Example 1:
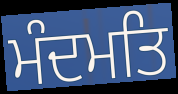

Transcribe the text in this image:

ਮੰਦਮਤਿ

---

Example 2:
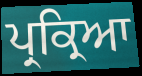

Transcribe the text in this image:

ਪ੍ਰਕ੍ਰਿਆ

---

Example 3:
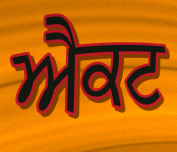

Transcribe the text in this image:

ਐਕਟ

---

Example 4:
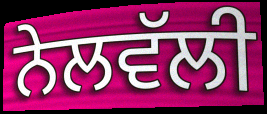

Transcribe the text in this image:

ਨੇਲਵੱਲੀ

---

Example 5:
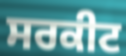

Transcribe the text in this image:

ਸਰਕੀਟ